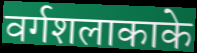
वर्गशलाकाके